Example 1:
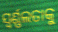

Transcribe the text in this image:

ସ୍ଵର୍ଣ୍ଣଲତାକୁ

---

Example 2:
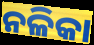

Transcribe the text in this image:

ନଳିକା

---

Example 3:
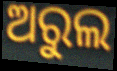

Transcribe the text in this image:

ଅରୁଲ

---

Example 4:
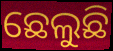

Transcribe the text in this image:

ଛେଲୁଛି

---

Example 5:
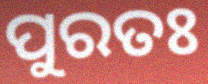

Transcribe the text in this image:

ପୁରତଃ